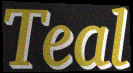
Teal